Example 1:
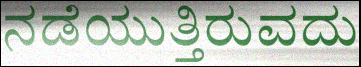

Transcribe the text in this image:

ನಡೆಯುತ್ತಿರುವದು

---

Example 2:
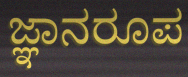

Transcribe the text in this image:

ಜ್ಞಾನರೂಪ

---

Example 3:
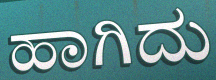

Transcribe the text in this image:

ಹಾಗಿದು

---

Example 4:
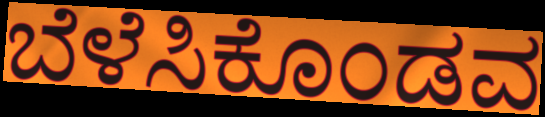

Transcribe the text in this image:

ಬೆಳೆಸಿಕೊಂಡವ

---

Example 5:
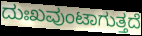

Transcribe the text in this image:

ದುಃಖವುಂಟಾಗುತ್ತದೆ